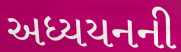
અધ્યયનની